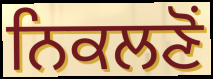
ਨਿਕਲਣੋਂ